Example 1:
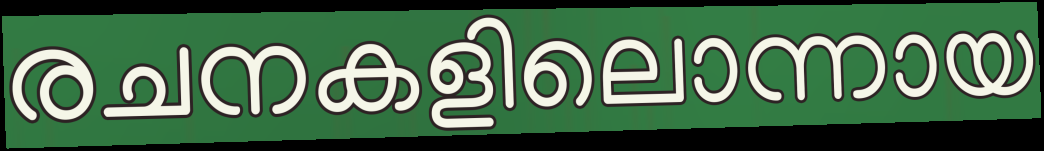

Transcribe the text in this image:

രചനകളിലൊന്നായ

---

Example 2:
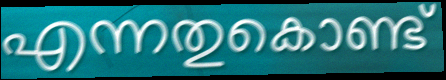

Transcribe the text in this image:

എന്നതുകൊണ്ട്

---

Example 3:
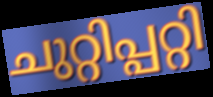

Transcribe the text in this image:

ചുറ്റിപ്പറ്റി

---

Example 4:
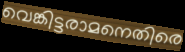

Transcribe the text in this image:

വെങ്കിട്ടരാമനെതിരെ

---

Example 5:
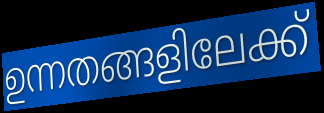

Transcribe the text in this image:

ഉന്നതങ്ങളിലേക്ക്